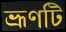
ভ্রূণটি